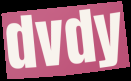
dvdy